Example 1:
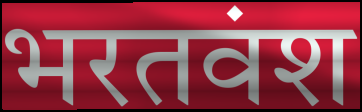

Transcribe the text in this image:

भरतवंश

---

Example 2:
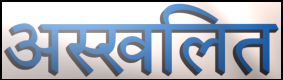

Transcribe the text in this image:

अस्खलित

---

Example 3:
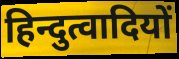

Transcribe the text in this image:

हिन्दुत्वादियों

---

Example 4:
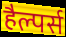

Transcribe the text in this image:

हैल्पर्स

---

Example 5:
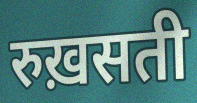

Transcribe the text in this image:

रुख़सती